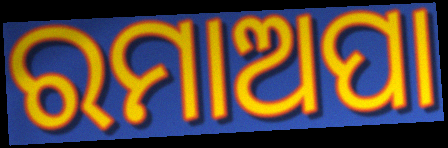
ରମାଅପା